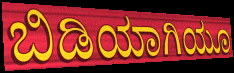
ಬಿಡಿಯಾಗಿಯೂ